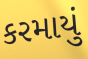
કરમાયું